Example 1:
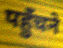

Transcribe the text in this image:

पहुंँचने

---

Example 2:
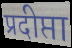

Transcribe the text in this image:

प्रदीप्ता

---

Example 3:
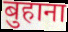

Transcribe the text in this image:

बुहाना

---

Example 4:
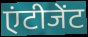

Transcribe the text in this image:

एंटीजेंट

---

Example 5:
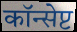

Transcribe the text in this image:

कॉन्सेप्ट